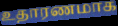
உதாரணமாக